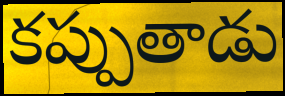
కప్పుతాడు